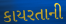
કાયરતાની